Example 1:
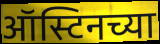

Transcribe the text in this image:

ऑस्टिनच्या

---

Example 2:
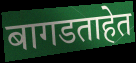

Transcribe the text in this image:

बागडताहेत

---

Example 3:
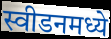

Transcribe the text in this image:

स्वीडनमध्ये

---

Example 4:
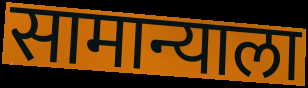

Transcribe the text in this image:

सामान्याला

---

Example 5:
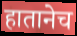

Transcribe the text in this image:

हातानेच